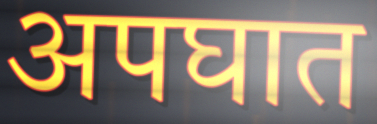
अपघात